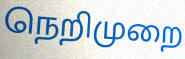
நெறிமுறை